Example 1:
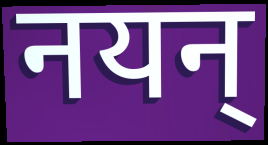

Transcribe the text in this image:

नयन्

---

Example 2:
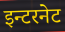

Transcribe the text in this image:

इन्टरनेट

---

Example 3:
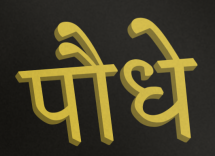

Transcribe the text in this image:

पौधे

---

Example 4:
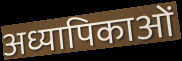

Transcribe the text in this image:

अध्यापिकाओं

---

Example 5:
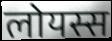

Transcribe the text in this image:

लोयस्स